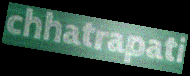
chhatrapati